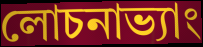
লোচনাভ্যাং